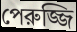
পেরুজ্জি